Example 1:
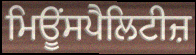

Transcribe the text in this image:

ਮਿਊਂਸਪੈਲਿਟੀਜ਼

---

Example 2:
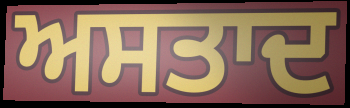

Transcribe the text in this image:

ਅਸਤਾਦ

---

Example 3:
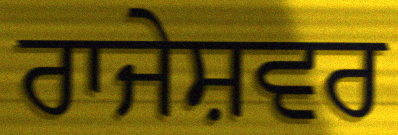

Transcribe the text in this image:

ਰਾਜੇਸ਼ਵਰ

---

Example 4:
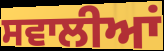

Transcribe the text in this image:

ਸਵਾਲੀਆਂ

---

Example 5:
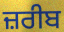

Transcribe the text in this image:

ਜ਼ਰੀਬ